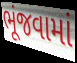
ભૂંજવામાં